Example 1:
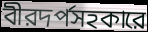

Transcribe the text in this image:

বীরদর্পসহকারে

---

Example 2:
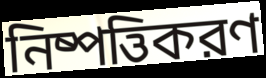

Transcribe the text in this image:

নিষ্পত্তিকরণ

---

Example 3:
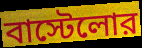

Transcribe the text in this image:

বাস্টেলোর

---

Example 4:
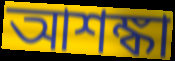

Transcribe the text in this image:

আশঙ্কা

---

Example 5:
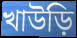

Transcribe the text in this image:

খাউড়ি